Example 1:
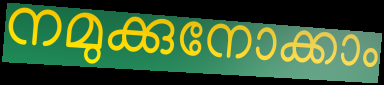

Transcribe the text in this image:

നമുക്കുനോക്കാം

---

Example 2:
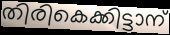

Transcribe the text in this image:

തിരികെക്കിട്ടാന്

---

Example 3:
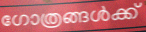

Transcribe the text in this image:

ഗോത്രങ്ങൾക്ക്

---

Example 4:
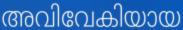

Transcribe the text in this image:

അവിവേകിയായ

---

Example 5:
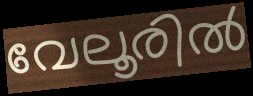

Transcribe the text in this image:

വേലൂരിൽ